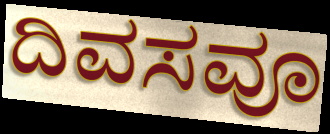
ದಿವಸವೂ